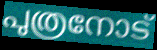
പുത്രനോട്